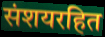
संशयरहित